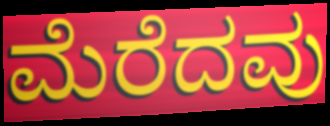
ಮೆರೆದವು